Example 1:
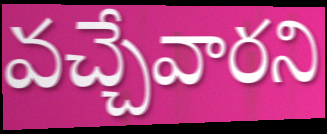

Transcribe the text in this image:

వచ్చేవారని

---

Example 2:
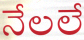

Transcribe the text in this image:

నేలలే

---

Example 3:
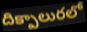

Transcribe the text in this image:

దిక్పాలురలో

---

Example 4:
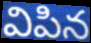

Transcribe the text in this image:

విపిన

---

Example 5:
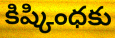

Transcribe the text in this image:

కిష్కింధకు